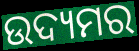
ଉଦ୍ୟମର